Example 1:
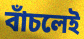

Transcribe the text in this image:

বাঁচলেই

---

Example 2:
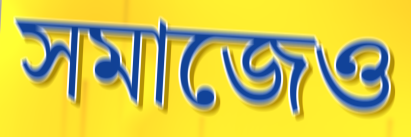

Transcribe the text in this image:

সমাজেও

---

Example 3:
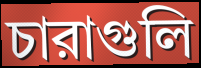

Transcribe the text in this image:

চারাগুলি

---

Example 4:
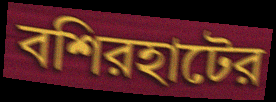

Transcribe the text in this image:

বশিরহাটের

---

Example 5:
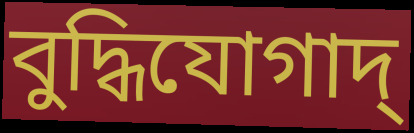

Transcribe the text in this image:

বুদ্ধিযোগাদ্